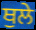
ਥੁਲੇ